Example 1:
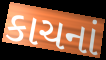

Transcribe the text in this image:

કાચનાં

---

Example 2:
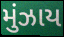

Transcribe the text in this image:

મુંઝાય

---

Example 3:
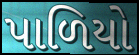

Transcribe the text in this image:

પાળિયો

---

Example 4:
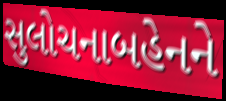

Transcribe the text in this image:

સુલોચનાબહેનને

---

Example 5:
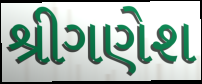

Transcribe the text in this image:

શ્રીગણેશ